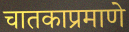
चातकाप्रमाणे